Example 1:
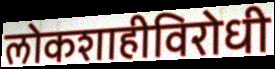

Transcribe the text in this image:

लोकशाहीविरोधी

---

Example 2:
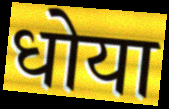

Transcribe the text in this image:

धोया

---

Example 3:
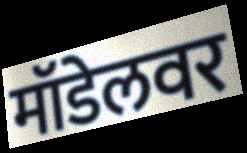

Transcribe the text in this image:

मॉडेलवर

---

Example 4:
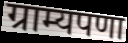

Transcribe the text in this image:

ग्राम्यपणा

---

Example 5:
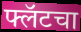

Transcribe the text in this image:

फ्लॅटचा